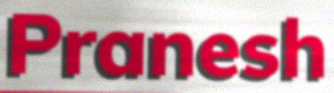
Pranesh